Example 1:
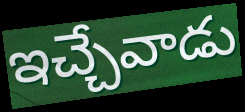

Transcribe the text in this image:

ఇచ్చేవాడు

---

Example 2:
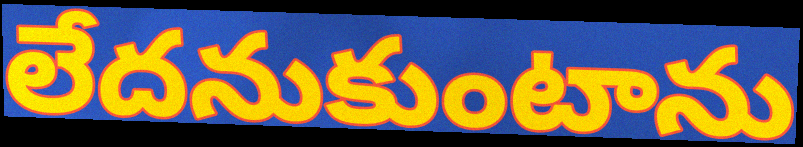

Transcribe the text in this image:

లేదనుకుంటాను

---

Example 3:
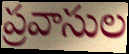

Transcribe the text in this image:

ప్రవాసుల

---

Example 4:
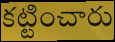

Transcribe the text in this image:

కట్టించారు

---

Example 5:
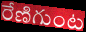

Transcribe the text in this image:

రేణిగుంట